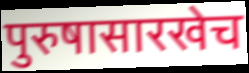
पुरुषासारखेच